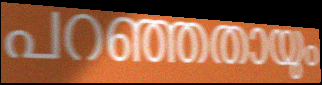
പറഞ്ഞതായും